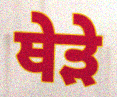
ਥੇੜੇ